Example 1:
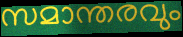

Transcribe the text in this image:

സമാന്തരവും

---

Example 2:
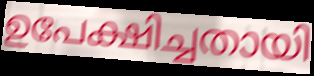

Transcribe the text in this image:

ഉപേക്ഷിച്ചതായി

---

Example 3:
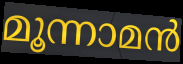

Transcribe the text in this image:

മൂന്നാമൻ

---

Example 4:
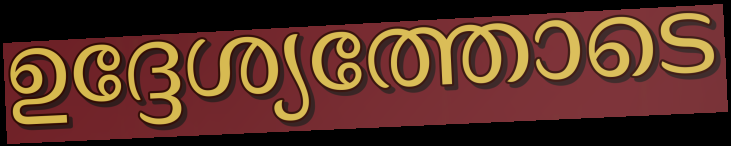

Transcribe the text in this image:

ഉദ്ദേശ്യത്തോടെ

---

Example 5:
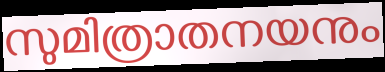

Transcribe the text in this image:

സുമിത്രാതനയനും